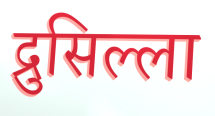
द्रुसिल्ला